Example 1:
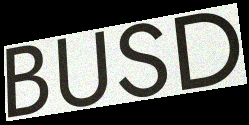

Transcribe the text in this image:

BUSD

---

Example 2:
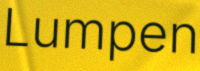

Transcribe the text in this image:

Lumpen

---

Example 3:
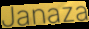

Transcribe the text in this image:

Janaza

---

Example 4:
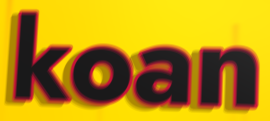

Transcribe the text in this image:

koan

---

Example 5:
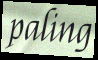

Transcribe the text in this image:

paling